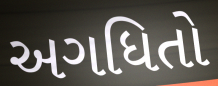
અગધિતો